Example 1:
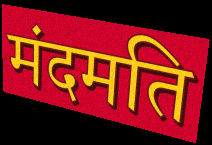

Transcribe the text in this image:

मंदमति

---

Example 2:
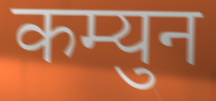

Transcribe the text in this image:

कम्युन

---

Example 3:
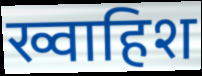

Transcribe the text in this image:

ख्वाहिश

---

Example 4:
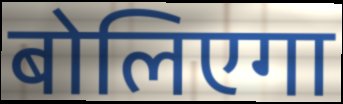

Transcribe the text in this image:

बोलिएगा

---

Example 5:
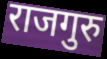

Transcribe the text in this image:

राजगुरु